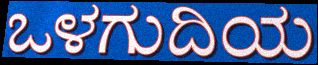
ಒಳಗುದಿಯ